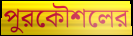
পুরকৌশলের